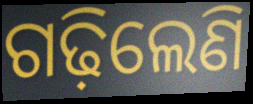
ଗଢ଼ିଲେଣି